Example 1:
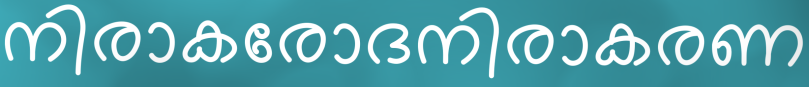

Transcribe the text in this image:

നിരാകരോദനിരാകരണ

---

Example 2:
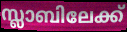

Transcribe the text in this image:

സ്ലാബിലേക്ക്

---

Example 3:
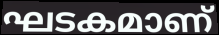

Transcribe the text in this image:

ഘടകമാണ്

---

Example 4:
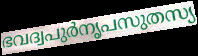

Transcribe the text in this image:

ഭവദ്വപുർനൃപസുതസ്യ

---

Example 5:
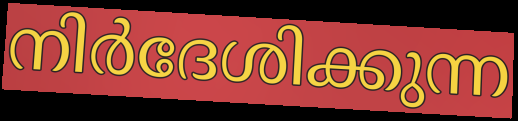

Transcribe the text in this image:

നിർദേശിക്കുന്ന